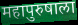
महापुरुषाला